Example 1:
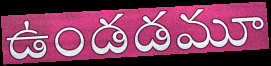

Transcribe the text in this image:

ఉండడమూ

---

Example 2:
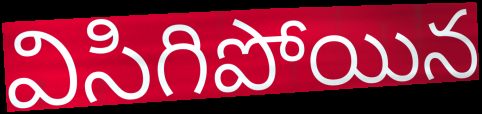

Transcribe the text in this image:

విసిగిపోయిన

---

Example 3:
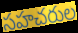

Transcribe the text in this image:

సహచరుల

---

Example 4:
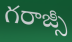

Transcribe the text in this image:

గరాజ్సీ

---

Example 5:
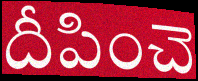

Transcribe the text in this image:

దీపించె